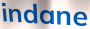
indane